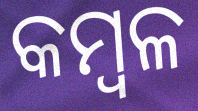
କମ୍ବଳ